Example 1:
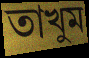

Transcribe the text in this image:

তাখুম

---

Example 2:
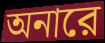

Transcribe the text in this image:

অনারে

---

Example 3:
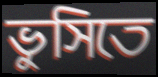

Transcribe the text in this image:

ভুসিতে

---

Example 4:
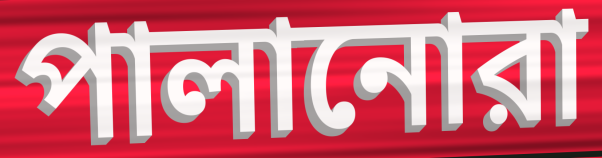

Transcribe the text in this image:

পালানোরা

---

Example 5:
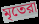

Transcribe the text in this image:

মৃতেরা